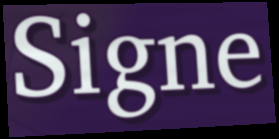
Signe